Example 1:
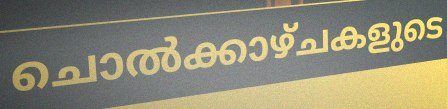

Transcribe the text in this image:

ചൊൽക്കാഴ്ചകളുടെ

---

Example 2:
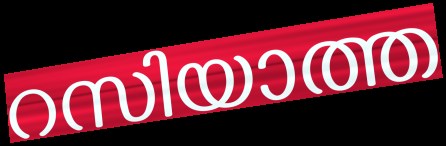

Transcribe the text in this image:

റസിയാത്ത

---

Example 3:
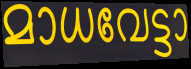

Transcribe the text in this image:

മാധവേട്ടാ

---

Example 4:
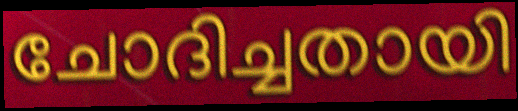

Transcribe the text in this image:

ചോദിച്ചതായി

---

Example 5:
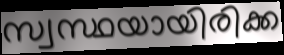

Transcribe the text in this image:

സ്വസ്ഥയായിരിക്ക